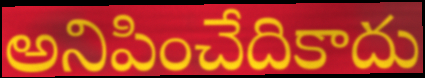
అనిపించేదికాదు